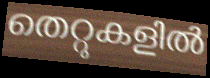
തെറ്റുകളിൽ